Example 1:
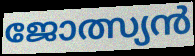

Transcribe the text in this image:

ജോത്സ്യൻ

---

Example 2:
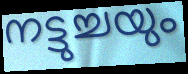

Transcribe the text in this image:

നട്ടുച്ചയും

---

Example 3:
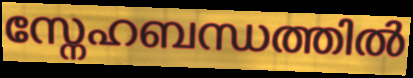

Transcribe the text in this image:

സ്നേഹബന്ധത്തിൽ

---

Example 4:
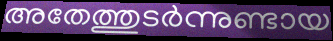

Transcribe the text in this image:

അതേത്തുടർന്നുണ്ടായ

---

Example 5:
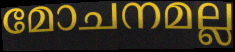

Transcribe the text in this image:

മോചനമല്ല